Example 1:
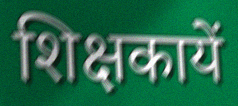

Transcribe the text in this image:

शिक्षकायें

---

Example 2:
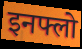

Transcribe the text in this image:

इनफ्लो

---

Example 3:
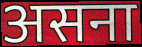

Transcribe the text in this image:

असना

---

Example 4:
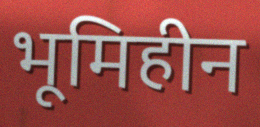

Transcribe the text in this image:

भूमिहीन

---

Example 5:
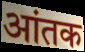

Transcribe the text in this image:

आंतक